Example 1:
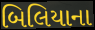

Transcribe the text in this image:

બિલિયાના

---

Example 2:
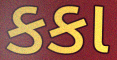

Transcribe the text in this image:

કકા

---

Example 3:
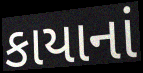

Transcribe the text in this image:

કાયાનાં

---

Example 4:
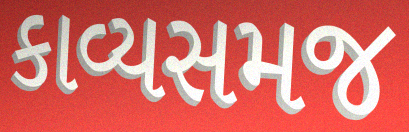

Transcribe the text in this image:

કાવ્યસમજ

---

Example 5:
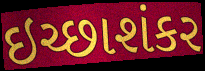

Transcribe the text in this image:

ઇચ્છાશંકર